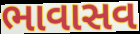
ભાવાસવ